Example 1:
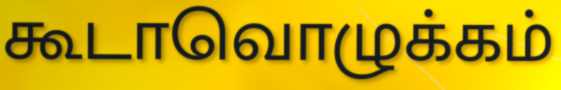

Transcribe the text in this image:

கூடாவொழுக்கம்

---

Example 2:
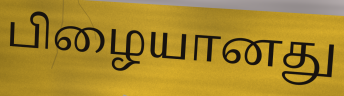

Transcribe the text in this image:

பிழையானது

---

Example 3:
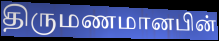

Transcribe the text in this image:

திருமணமானபின்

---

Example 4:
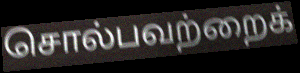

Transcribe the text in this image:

சொல்பவற்றைக்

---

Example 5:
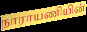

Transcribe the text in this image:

நாராயணியின்